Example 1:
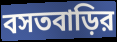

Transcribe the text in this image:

বসতবাড়ির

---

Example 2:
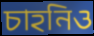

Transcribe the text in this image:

চাহনিও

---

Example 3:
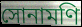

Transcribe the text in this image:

সোনামণি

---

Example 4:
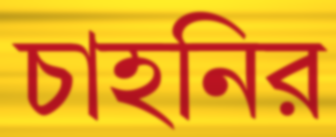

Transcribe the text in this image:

চাহনির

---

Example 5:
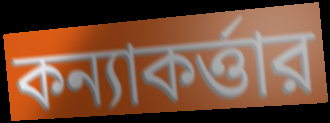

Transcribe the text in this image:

কন্যাকর্ত্তার